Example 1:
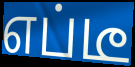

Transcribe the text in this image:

எப்டீ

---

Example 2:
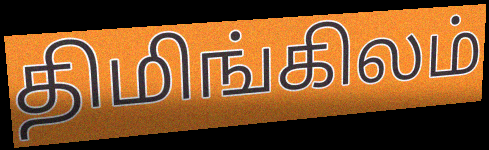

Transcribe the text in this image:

திமிங்கிலம்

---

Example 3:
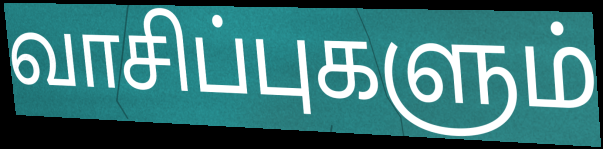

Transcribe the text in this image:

வாசிப்புகளும்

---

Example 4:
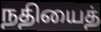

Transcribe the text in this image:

நதியைத்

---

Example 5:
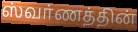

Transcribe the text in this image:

ஸ்வர்ணத்தின்